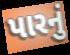
પારનું